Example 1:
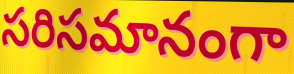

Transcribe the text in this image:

సరిసమానంగా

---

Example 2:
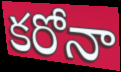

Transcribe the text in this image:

కరోనా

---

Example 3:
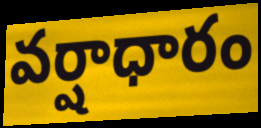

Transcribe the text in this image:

వర్షాధారం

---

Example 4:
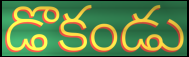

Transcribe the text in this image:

డొకండు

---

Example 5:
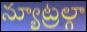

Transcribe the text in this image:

న్యూట్రల్గా